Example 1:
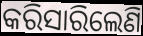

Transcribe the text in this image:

କରିସାରିଲେଣି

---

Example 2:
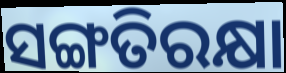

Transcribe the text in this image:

ସଙ୍ଗତିରକ୍ଷା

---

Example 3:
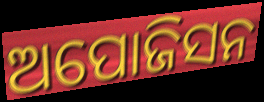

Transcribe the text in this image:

ଅପୋଜିସନ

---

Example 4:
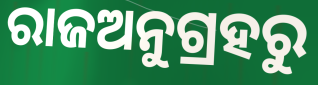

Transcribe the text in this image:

ରାଜଅନୁଗ୍ରହରୁ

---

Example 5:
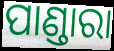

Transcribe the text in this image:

ପାଣ୍ଡାରା